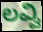
ಲವ್ವಿ